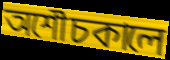
অশৌচকালে